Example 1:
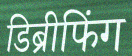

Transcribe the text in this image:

डिब्रीफिंग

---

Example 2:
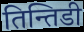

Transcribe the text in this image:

तिन्तिडी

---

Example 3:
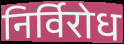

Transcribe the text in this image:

निर्विरोध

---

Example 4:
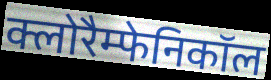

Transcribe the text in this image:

क्लोरैम्फेनिकॉल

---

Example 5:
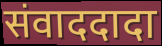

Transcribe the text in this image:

संवाददादा